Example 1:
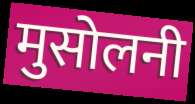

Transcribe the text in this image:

मुसोलनी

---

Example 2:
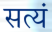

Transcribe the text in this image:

सत्यं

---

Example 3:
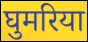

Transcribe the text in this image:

घुमरिया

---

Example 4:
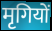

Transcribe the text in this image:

मृगियों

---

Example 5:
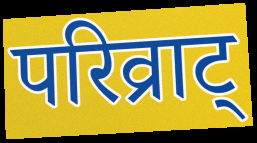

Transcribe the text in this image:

परिव्राट्